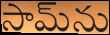
సామ్‌ను